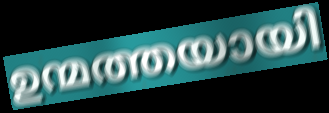
ഉന്മത്തയായി